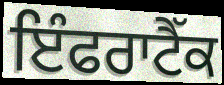
ਇੰਫਰਾਟੈੱਕ